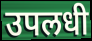
उपलधी